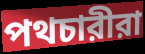
পথচারীরা